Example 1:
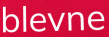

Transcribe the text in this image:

blevne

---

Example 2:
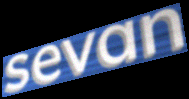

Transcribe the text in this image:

sevan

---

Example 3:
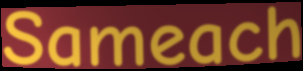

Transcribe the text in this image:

Sameach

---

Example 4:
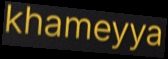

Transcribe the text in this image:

khameyya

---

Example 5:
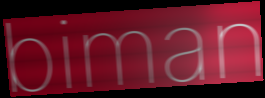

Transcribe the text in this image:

biman